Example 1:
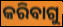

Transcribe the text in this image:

କରିବାଗୁ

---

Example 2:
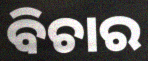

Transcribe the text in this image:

ବିଚାର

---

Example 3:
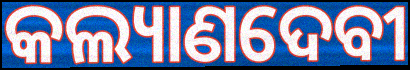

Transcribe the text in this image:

କଲ୍ୟାଣଦେବୀ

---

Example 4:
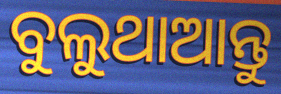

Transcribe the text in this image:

ବୁଲୁଥାଆନ୍ତୁ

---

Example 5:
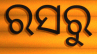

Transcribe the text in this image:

ରସରୁ